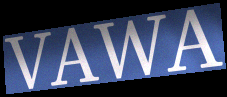
VAWA